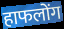
हाफलोंग